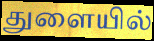
துளையில்